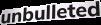
unbulleted